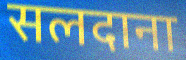
सलदाना